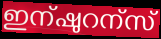
ഇന്ഷുറന്സ്